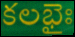
కలభైః